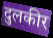
दुलकीर